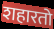
शहारतो